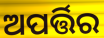
ଅପର୍ତ୍ତିର